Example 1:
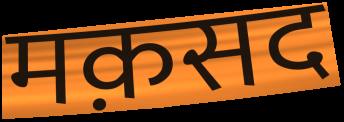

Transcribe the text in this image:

मक़सद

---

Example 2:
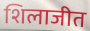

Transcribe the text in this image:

शिलाजीत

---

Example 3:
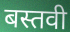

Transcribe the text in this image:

बस्तवी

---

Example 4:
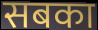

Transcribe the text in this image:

सबका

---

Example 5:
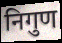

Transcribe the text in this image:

निगुण